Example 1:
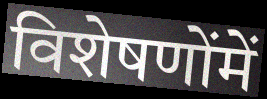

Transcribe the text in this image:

विशेषणोंमें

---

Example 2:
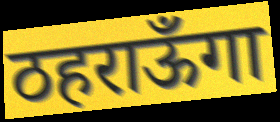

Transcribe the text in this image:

ठहराऊँगा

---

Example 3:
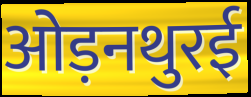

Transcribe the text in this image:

ओड़नथुरई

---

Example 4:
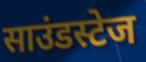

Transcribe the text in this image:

साउंडस्टेज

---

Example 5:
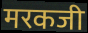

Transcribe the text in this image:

मरकजी